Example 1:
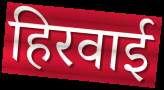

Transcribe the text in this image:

हिरवाई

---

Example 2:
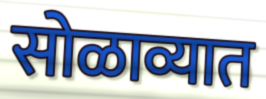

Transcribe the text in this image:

सोळाव्यात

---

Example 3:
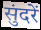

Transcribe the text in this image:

सुंदरें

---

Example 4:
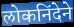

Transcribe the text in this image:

लोकनिंदेने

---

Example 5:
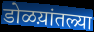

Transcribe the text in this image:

डोळय़ांतल्या